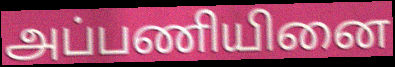
அப்பணியினை